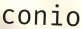
conio